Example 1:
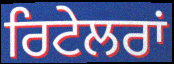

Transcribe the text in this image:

ਰਿਟੇਲਰਾਂ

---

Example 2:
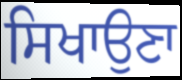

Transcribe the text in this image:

ਸਿਖਾਉਣਾ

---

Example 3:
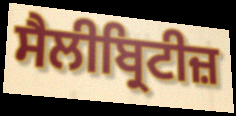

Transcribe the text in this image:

ਸੈਲੀਬ੍ਰਿਟੀਜ਼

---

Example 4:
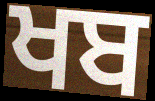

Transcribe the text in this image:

ਖਬ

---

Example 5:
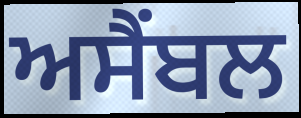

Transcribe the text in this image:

ਅਸੈਂਬਲ